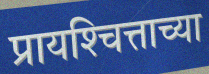
प्रायश्‍चित्ताच्या